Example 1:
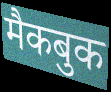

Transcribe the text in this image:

मैकबुक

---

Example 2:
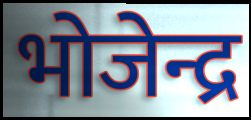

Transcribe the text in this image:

भोजेन्द्र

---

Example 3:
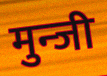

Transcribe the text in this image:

मुन्जी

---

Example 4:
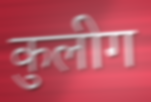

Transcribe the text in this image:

कुलीग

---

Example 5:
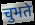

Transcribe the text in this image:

चुभते